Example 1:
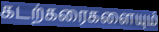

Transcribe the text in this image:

கடற்கரைகளையும்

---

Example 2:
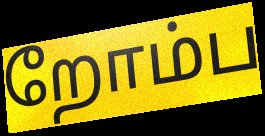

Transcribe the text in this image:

றோம்ப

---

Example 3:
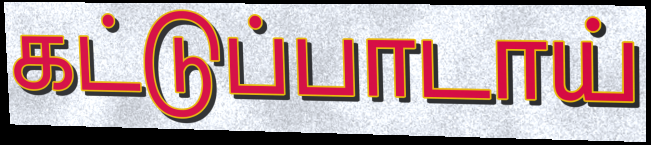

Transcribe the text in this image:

கட்டுப்பாடாய்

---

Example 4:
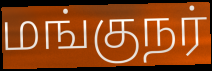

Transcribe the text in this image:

மங்குநர்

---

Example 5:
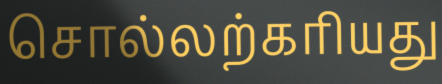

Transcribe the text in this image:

சொல்லற்கரியது